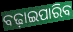
ବଢ଼ାଇପାରିବ